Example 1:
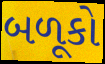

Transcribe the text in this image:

બળૂકો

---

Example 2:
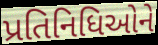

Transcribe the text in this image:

પ્રતિનિધિઓને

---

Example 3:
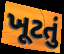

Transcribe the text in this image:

ખૂટતું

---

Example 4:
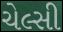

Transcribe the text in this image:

ચેલ્સી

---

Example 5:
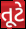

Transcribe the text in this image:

તૂટે